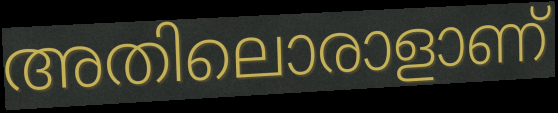
അതിലൊരാളാണ്